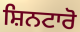
ਸ਼ਿਨਟਾਰੋ